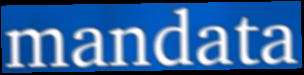
mandata